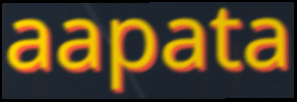
aapata